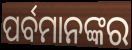
ପର୍ବମାନଙ୍କର